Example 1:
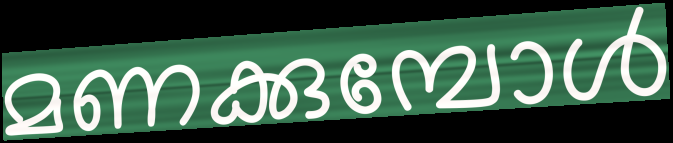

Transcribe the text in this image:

മണക്കുമ്പോൾ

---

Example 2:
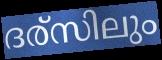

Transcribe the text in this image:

ദര്സിലും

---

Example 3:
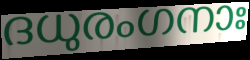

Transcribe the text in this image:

ദധുരംഗനാഃ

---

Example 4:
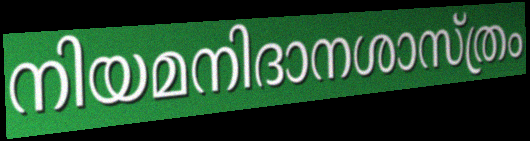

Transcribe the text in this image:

നിയമനിദാനശാസ്ത്രം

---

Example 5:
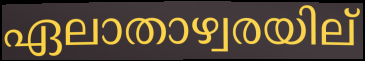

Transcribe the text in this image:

ഏലാതാഴ്വരയില്